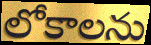
లోకాలను